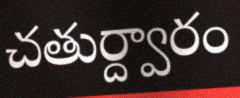
చతుర్ద్వారం